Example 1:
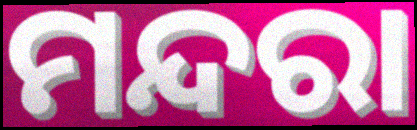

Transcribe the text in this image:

ମନ୍ଦରା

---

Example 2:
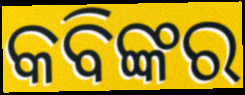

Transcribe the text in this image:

କବିଙ୍କର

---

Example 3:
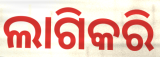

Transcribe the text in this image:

ଲାଗିକରି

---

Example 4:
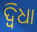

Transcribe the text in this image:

ଦ୍ୱିଧା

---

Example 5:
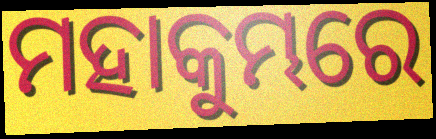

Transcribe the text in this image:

ମହାକୁମ୍ଭରେ